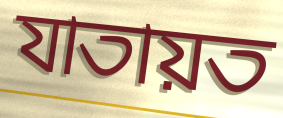
যাতায়ত